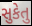
સુકેતુ